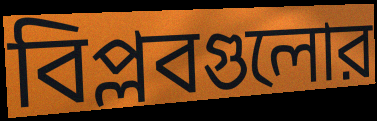
বিপ্লবগুলোর